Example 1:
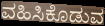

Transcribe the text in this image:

ವಹಿಸಿಕೊಡುವ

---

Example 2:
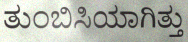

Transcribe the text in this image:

ತುಂಬಿಸಿಯಾಗಿತ್ತು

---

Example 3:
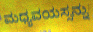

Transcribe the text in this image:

ಮಧ್ಯವಯಸ್ಸನ್ನು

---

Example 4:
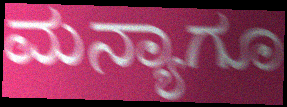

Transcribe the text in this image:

ಮನ್ಯಾಗೂ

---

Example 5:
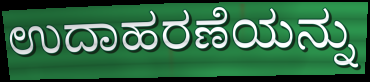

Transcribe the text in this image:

ಉದಾಹರಣೆಯನ್ನು